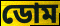
ডোম